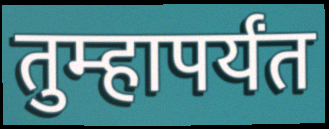
तुम्हापर्यंत